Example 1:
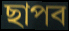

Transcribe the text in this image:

ছাপব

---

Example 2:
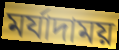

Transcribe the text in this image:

মর্যাদাময়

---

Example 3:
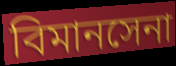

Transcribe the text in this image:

বিমানসেনা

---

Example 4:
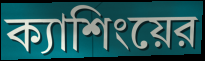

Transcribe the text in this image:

ক্যাশিংয়ের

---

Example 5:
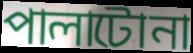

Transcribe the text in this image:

পালাটোনা